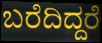
ಬರೆದಿದ್ದರೆ